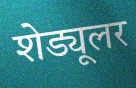
शेड्यूलर